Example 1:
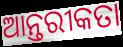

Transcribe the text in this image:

ଆନ୍ତରୀକତା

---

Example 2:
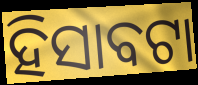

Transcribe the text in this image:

ହିସାବଟା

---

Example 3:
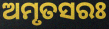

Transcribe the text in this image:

ଅମୃତସରଃ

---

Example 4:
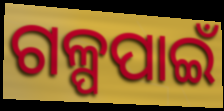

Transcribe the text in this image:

ଗଳ୍ପପାଇଁ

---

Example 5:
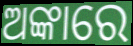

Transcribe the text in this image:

ଅଙ୍କାରେ